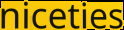
niceties